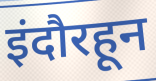
इंदौरहून